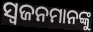
ସ୍ବଜନମାନଙ୍କୁ